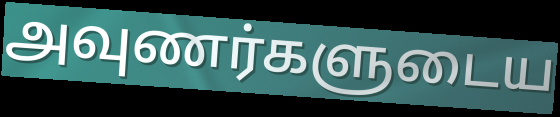
அவுணர்களுடைய